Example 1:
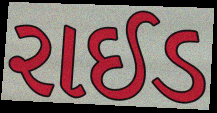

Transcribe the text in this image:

રાઈડ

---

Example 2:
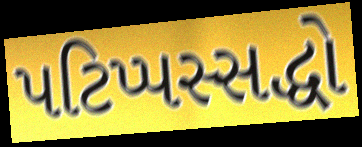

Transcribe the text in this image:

પટિપ્પસ્સદ્ધો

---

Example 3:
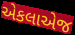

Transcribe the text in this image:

એકલાએજ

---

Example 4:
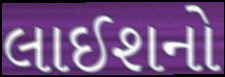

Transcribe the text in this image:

લાઈશનો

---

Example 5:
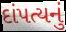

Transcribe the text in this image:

દાંપત્યનું